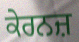
ਕੇਰਨਜ਼